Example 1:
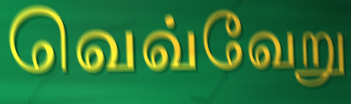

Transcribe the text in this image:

வெவ்வேறு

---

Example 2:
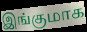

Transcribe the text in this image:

இங்குமாக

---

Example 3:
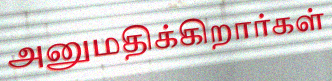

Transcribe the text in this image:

அனுமதிக்கிறார்கள்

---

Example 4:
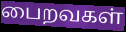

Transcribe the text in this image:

பைறவகள்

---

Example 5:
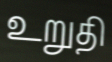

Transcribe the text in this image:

உறுதி